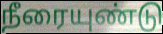
நீரையுண்டு